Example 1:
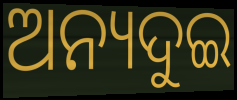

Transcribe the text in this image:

ଅନ୍ୟଦୁଇ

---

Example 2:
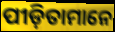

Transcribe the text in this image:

ପୀଡ଼ିତାମାନେ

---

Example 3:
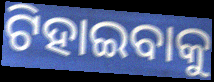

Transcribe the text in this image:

ଟିହାଇବାକୁ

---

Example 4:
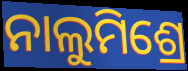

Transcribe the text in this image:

ନାଲୁମିଶ୍ରେ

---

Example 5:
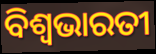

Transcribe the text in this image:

ବିଶ୍ୱଭାରତୀ